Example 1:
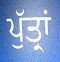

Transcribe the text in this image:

ਪੁੱਤ੍ਰਾਂ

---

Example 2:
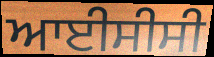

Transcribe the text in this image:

ਆਈਸੀਸੀ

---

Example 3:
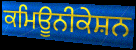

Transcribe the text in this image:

ਕਮਿਊਨੀਕੇਸ਼ਨ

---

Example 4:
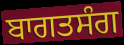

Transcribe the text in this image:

ਬਾਗਤਸੰਗ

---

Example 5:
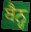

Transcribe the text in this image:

ਬੈਨ੍ਹ